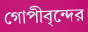
গোপীবৃন্দের